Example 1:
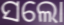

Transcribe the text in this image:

ସଲୋ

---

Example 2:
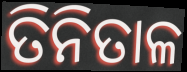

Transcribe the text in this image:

ତିନିତାଳ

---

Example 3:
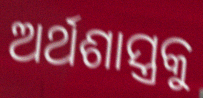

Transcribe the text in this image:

ଅର୍ଥଶାସ୍ତ୍ରକୁ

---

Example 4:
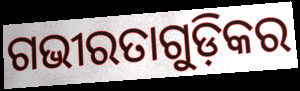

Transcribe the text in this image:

ଗଭୀରତାଗୁଡ଼ିକର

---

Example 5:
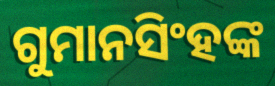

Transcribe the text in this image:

ଗୁମାନସିଂହଙ୍କ